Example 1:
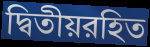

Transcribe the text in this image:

দ্বিতীয়রহিত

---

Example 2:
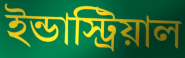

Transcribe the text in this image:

ইন্ডাস্ট্রিয়াল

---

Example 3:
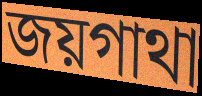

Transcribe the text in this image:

জয়গাথা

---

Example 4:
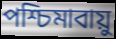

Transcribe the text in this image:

পশ্চিমাবায়ু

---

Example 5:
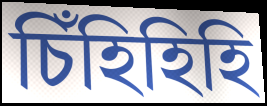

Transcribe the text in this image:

চিঁহিহিহি